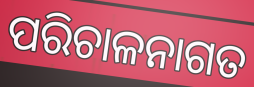
ପରିଚାଳନାଗତ